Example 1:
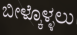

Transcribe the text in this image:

ಬೀಳ್ಕೊಳ್ಳಲು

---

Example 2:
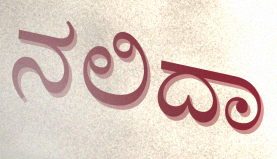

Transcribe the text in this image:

ನಲಿದಾ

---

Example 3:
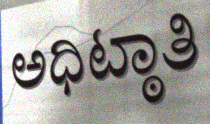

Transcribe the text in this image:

ಅಧಿಟ್ಠಾತಿ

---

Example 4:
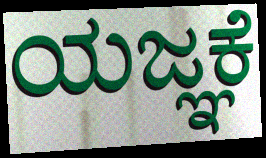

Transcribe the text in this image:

ಯಜ್ಞಕೆ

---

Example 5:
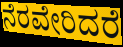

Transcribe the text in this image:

ನೆರವೇರಿದರೆ